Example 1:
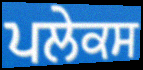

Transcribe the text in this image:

ਪਲੇਕਸ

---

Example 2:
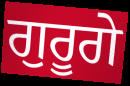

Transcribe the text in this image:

ਗੁਰੂਗੇ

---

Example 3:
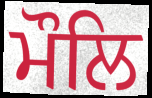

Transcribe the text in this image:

ਮੌਲਿ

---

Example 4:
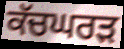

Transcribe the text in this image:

ਕੱਚਘਰੜ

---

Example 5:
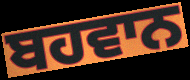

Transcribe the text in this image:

ਬਹਵਾਨ